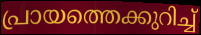
പ്രായത്തെക്കുറിച്ച്